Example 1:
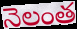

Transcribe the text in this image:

నెలంత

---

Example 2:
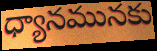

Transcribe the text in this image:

ధ్యానమునకు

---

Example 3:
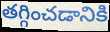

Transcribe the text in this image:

తగ్గించడానికి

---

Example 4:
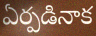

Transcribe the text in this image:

ఏర్పడినాక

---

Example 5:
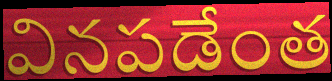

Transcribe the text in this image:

వినపడేంత